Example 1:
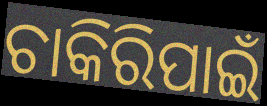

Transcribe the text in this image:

ଚାକିରିପାଇଁ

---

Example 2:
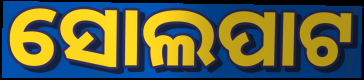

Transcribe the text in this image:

ସୋଲପାଟ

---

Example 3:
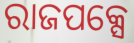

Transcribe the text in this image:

ରାଜପକ୍ସେ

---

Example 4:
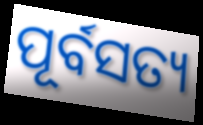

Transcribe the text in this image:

ପୂର୍ବସତ୍ୟ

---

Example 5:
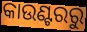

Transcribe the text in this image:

କାଉଣ୍ଟରରୁ